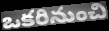
ఒకరినుంచి